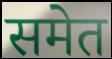
समेत